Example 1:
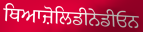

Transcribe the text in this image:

ਥਿਆਜ਼ੋਲਿਡੀਨੇਡੀਓਨ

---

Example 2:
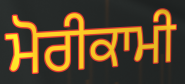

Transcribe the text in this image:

ਮੋਰੀਕਾਮੀ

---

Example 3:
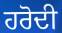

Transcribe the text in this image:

ਹਰੋਦੀ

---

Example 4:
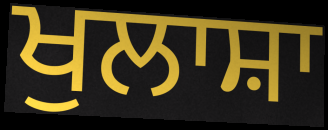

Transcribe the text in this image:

ਖੁਲਾਸ਼ਾ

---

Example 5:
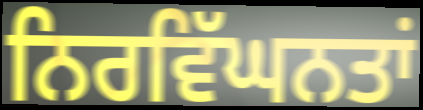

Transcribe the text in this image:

ਨਿਰਵਿੱਘਨਤਾਂ